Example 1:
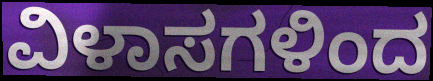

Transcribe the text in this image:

ವಿಳಾಸಗಳಿಂದ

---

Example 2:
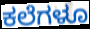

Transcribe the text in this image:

ಕಲೆಗಳೂ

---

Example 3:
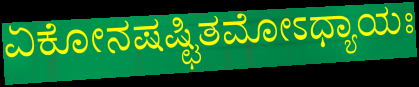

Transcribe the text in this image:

ಏಕೋನಷಷ್ಟಿತಮೋಽಧ್ಯಾಯಃ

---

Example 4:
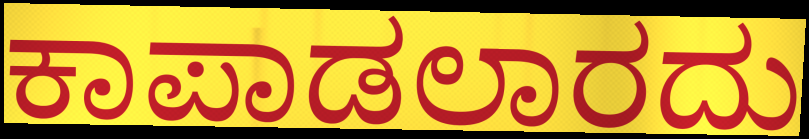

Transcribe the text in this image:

ಕಾಪಾಡಲಾರದು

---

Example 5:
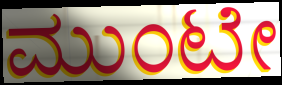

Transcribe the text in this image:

ಮುಂಟೇ